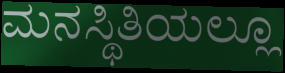
ಮನಸ್ಥಿತಿಯಲ್ಲೂ